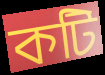
কটি